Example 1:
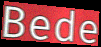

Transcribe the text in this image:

Bede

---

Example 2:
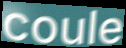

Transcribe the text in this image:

coule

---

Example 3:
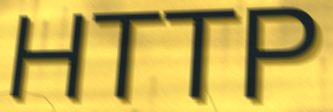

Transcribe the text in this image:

HTTP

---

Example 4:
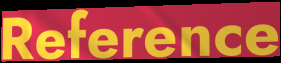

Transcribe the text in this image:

Reference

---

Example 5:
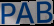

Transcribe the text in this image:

PAB